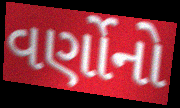
વર્ણોનો